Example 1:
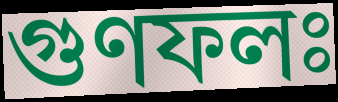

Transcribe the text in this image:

গুণফলঃ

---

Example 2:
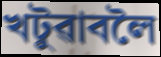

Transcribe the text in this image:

খটুৱাবলৈ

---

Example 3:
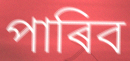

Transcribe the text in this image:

পাৰিব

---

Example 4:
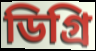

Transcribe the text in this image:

ডিগ্ৰি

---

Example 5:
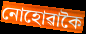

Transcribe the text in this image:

নোহোৱাকৈ